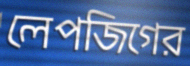
লেপজিগের